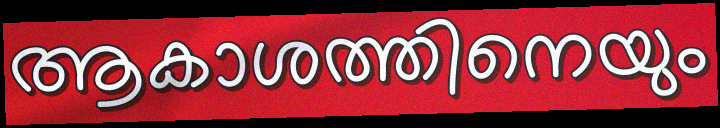
ആകാശത്തിനെയും